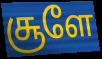
சூளே